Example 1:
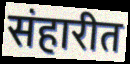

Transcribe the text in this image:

संहारीत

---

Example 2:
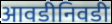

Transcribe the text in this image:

आवडीनिवडी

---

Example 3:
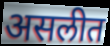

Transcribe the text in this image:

असलीत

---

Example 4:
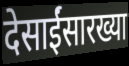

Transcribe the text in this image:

देसाईंसारख्या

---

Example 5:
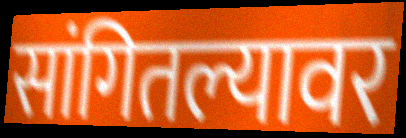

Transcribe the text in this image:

सांगितल्यावर